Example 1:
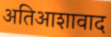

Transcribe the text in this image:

अतिआशावाद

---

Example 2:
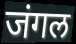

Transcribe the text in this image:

जंगल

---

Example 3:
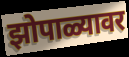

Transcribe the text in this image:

झोपाळ्यावर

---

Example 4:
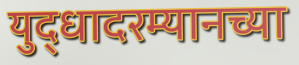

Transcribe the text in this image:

युद्धादरम्यानच्या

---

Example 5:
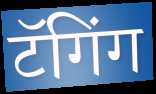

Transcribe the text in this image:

टॅगिंग